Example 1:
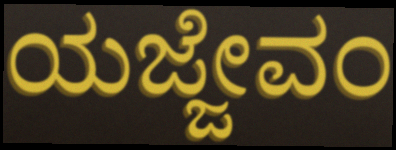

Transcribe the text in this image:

ಯಜ್ಜೇವಂ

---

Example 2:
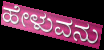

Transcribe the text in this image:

ಹೇಳುವನು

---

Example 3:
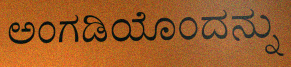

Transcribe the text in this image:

ಅಂಗಡಿಯೊಂದನ್ನು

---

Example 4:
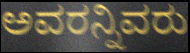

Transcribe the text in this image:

ಅವರನ್ನಿವರು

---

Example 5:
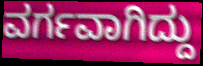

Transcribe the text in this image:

ವರ್ಗವಾಗಿದ್ದು